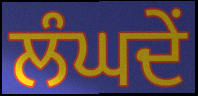
ਲੰਘਦੇਂ